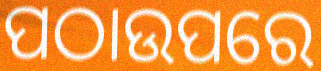
ପଠାଉପରେ